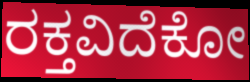
ರಕ್ತವಿದೆಕೋ